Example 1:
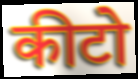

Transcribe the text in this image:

कीटो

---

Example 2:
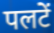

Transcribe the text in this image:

पलटें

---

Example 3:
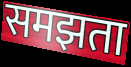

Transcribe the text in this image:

समझता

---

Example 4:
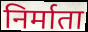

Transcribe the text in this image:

निर्माता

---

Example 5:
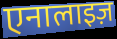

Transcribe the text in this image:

एनालाइज़